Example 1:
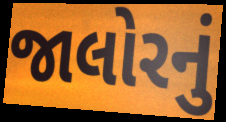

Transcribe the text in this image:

જાલોરનું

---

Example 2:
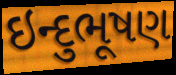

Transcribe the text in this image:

ઇન્દુભૂષણ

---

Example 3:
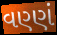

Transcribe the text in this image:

વણ્ણં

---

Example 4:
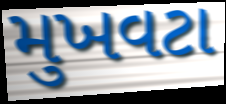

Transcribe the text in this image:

મુખવટા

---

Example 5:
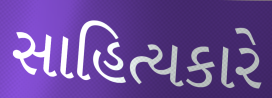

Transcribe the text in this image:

સાહિત્યકારે